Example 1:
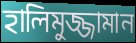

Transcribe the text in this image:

হালিমুজ্জামান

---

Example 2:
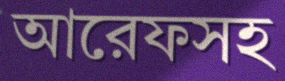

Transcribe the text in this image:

আরেফসহ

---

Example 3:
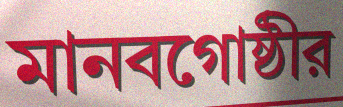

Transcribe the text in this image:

মানবগোষ্ঠীর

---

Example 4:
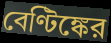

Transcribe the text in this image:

বেণ্টিঙ্কের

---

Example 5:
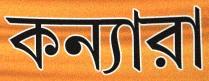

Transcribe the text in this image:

কন্যারা